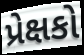
પ્રેક્ષકો